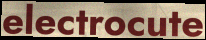
electrocute